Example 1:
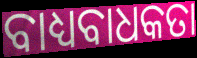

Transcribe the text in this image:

ବାଧ୍ୟବାଧକତା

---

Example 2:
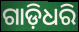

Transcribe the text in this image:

ଗାଡ଼ିଧରି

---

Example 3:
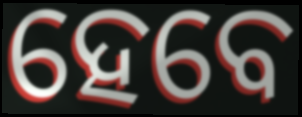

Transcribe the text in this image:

ହେବେ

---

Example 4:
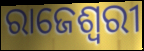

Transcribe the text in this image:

ରାଜେଶ୍ଵରୀ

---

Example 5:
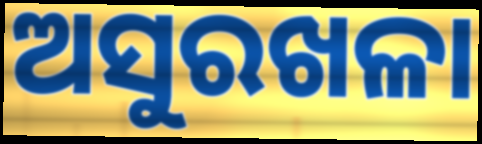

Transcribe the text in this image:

ଅସୁରଖଳା